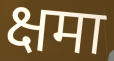
क्षमा